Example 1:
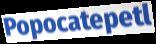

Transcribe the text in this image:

Popocatepetl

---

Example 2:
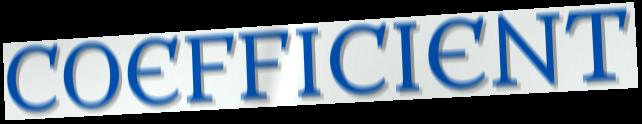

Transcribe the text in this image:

COEFFICIENT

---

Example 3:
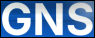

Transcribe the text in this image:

GNS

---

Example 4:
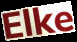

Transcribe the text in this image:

Elke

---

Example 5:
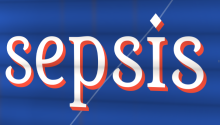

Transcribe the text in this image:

sepsis